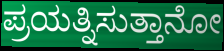
ಪ್ರಯತ್ನಿಸುತ್ತಾನೋ